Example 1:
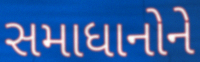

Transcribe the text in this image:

સમાધાનોને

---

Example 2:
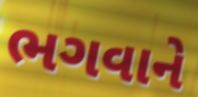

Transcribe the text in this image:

ભગવાને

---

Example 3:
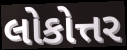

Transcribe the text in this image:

લોકોત્તર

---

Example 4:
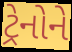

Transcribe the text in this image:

ટ્રેનોને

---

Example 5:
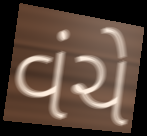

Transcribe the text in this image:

વંચે